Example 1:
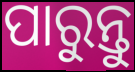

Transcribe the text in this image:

ପାରୁନ୍ତୁ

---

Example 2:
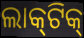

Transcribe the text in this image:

ଲାକ୍‌ଟିକ୍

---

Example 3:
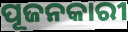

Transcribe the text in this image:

ପୂଜନକାରୀ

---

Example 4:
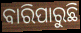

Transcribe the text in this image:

ବାରିପାରୁଛି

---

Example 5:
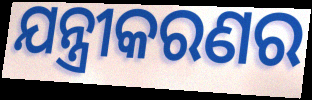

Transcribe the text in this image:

ଯନ୍ତ୍ରୀକରଣର